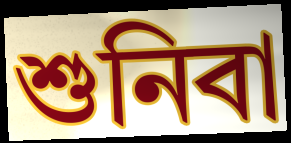
শুনিবা